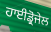
ਹਾਈਡ੍ਰੋਜੇਲ